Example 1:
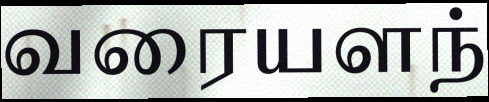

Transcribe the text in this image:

வரையளந்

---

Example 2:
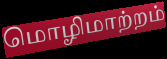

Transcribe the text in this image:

மொழிமாற்றம்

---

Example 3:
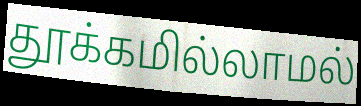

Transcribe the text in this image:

தூக்கமில்லாமல்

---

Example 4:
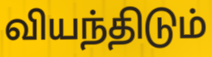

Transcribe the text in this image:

வியந்திடும்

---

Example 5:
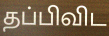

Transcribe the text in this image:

தப்பிவிட